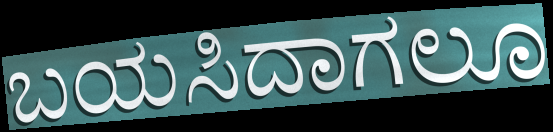
ಬಯಸಿದಾಗಲೂ